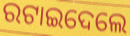
ରଟାଇଦେଲେ